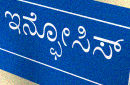
ಇನ್ಫೋಸಿಸ್